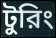
টুরিং